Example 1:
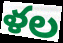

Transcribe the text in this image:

ళల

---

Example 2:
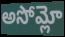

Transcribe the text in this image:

అసోమ్లో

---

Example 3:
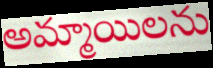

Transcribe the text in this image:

అమ్మాయిలను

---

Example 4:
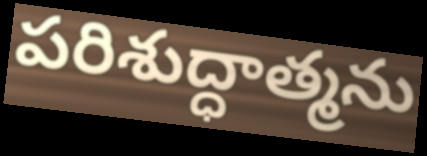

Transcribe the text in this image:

పరిశుద్ధాత్మను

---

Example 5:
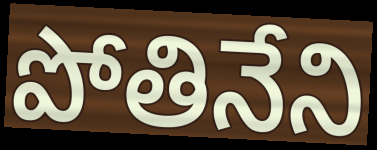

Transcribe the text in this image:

పోతినేని